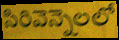
సిరివెన్నెలలో